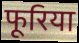
फूरिया